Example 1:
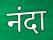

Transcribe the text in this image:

नंदा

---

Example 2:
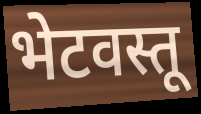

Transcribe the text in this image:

भेटवस्तू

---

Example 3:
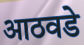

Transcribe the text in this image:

आठवडे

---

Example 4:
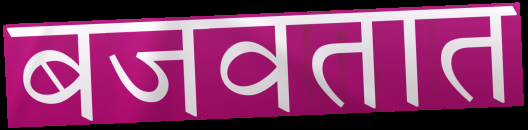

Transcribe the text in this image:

बजवतात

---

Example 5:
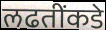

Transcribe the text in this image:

लढतींकडे